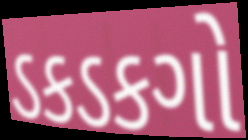
ડકડકગો